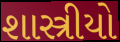
શાસ્ત્રીયો